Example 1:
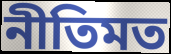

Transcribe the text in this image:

নীতিমত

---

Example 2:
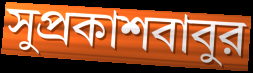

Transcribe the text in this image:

সুপ্রকাশবাবুর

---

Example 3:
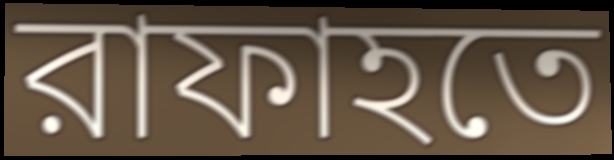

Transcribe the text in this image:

রাফাহতে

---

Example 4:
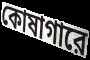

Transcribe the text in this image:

কোষাগারে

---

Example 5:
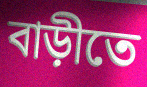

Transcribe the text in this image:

বাড়ীতে